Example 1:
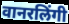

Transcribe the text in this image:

वानरलिंगी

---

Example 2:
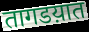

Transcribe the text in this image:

तागडय़ात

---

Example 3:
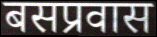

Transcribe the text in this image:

बसप्रवास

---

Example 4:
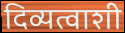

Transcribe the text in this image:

दिव्यत्वाशी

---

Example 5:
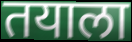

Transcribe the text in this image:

तयाला